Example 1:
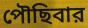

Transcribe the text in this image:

পৌছিবার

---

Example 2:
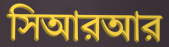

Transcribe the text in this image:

সিআরআর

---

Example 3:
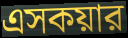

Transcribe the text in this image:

এসকয়ার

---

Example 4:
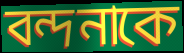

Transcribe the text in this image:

বন্দনাকে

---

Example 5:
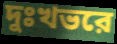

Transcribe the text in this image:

দুঃখভরে